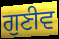
ਗੁਣੀਵ